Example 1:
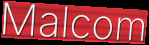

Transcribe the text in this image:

Malcom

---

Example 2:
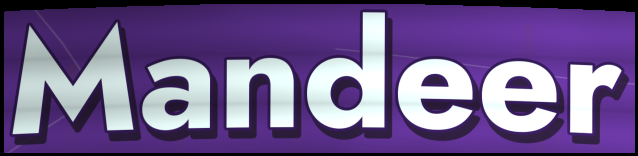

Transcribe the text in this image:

Mandeer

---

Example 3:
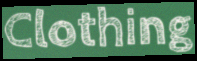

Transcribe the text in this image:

Clothing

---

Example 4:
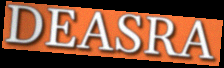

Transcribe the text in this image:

DEASRA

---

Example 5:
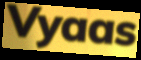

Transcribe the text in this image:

Vyaas